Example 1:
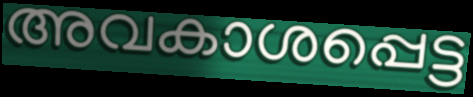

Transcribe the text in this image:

അവകാശപ്പെട്ട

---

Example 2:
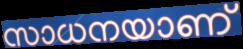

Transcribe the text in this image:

സാധനയാണ്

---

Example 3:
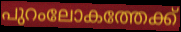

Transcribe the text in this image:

പുറംലോകത്തേക്ക്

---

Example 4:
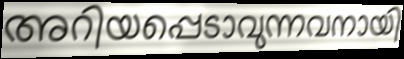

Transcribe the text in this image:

അറിയപ്പെടാവുന്നവനായി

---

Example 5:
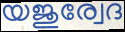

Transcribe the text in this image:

യജുര്വേദ